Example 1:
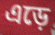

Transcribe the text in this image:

এড়ে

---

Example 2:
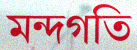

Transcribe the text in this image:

মন্দগতি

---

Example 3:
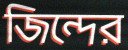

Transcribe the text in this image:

জিন্দের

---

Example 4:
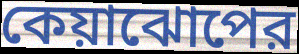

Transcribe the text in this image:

কেয়াঝোপের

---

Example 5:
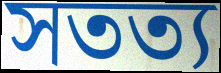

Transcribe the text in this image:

সতত্য